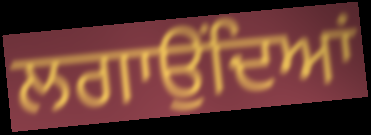
ਲਗਾਉਂਦਿਆਂ